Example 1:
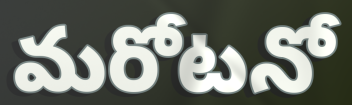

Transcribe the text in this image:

మరోటనో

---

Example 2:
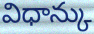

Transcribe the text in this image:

విధాన్కు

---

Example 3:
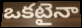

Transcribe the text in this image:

ఒకటైనా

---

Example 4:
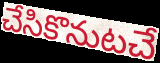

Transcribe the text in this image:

చేసికొనుటచే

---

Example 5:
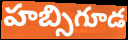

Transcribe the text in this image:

హబ్సిగూడ